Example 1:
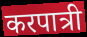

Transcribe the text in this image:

करपात्री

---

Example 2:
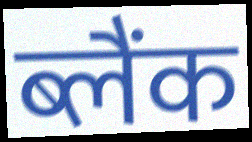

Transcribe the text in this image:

ब्लैंक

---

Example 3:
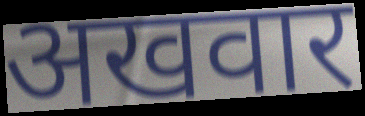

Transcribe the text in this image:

अखवार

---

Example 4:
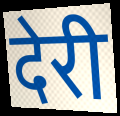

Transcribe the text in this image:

देरी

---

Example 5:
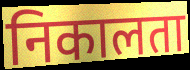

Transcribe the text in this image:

निकालता